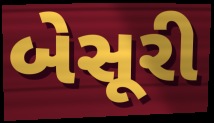
બેસૂરી